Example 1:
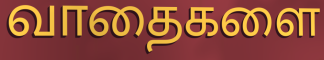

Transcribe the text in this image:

வாதைகளை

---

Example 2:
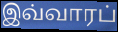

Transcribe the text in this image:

இவ்வாரப்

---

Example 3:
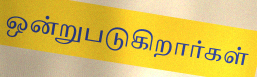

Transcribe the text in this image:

ஒன்றுபடுகிறார்கள்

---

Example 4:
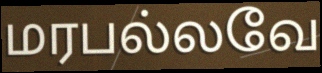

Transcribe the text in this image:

மரபல்லவே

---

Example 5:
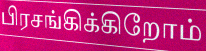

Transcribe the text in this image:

பிரசங்கிக்கிறோம்